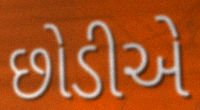
છોડીએ